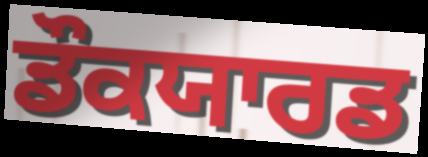
ਡੌਕਯਾਰਡ